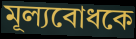
মূল্যবোধকে